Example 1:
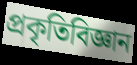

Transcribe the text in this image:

প্রকৃতিবিজ্ঞান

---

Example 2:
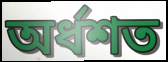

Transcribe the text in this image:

অর্ধশত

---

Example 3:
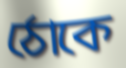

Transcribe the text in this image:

ঠোকে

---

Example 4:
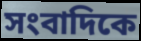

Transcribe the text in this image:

সংবাদিকে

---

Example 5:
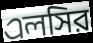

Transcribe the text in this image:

এলসির